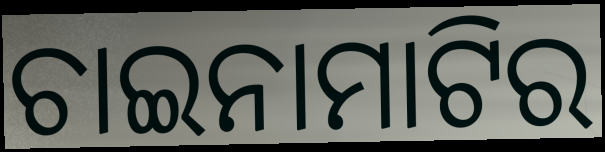
ଚାଇନାମାଟିର